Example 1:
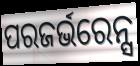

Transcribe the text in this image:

ପରଜର୍ଭରେନ୍ସ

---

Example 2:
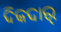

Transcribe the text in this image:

ଦିକଦାର୍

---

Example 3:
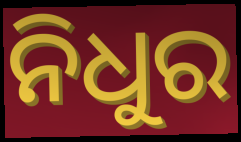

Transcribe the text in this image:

ନିଧୁର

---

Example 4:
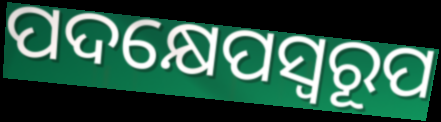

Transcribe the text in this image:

ପଦକ୍ଷେପସ୍ଵରୂପ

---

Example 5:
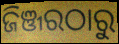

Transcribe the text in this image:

ଜିଞ୍ଜରଠାରୁ